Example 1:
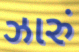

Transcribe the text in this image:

ઝારું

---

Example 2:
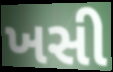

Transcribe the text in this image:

ખસી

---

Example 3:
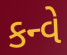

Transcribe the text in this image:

કન્વે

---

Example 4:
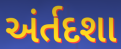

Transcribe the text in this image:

અંર્તદશા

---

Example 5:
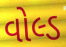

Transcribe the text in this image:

વોલ્ડ